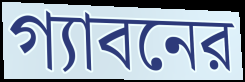
গ্যাবনের